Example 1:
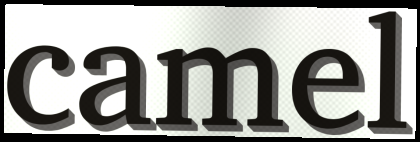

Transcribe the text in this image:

camel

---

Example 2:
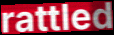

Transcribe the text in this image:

rattled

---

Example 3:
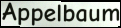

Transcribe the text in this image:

Appelbaum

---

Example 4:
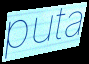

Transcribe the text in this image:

puta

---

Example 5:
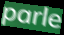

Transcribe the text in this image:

parle